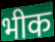
भीक